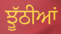
ਝੂੱਠੀਆਂ